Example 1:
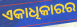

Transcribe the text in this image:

ଏକାଧିକାରର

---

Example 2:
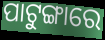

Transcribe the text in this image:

ପାଟୁଙ୍ଗାରେ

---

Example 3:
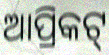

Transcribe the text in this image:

ଆପ୍ରିକଟ୍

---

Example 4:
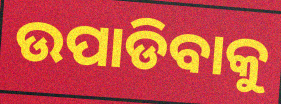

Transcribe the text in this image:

ଉପାଡିବାକୁ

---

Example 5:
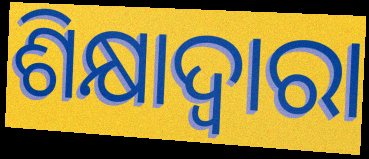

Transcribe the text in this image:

ଶିକ୍ଷାଦ୍ୱାରା